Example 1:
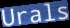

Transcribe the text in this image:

Urals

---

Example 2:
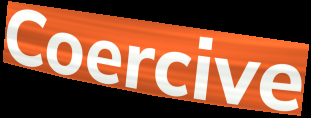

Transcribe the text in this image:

Coercive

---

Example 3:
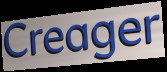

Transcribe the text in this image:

Creager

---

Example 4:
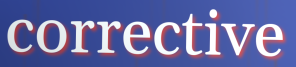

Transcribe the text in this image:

corrective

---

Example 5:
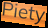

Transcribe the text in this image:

Piety